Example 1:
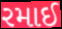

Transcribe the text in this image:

રમાઈ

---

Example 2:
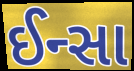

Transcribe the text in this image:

ઈન્સા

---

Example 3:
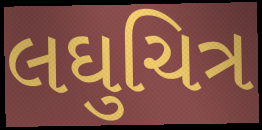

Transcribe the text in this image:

લઘુચિત્ર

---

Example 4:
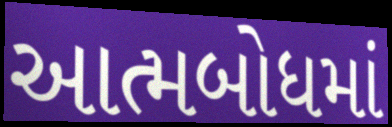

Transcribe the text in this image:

આત્મબોધમાં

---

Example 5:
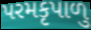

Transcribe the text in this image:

પરમકૃપાળુ